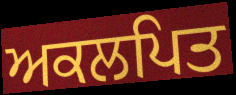
ਅਕਲਪਿਤ